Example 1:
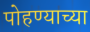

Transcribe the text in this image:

पोहण्याच्या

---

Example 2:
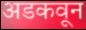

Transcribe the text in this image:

अडकवून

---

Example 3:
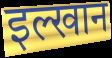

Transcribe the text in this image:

इल्खान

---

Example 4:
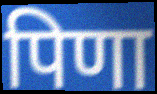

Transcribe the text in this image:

पिणा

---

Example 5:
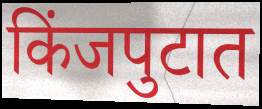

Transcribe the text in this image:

किंजपुटात